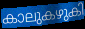
കാലുകഴുകി